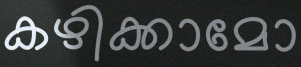
കഴിക്കാമോ